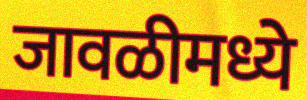
जावळीमध्ये